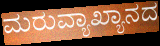
ಮರುವ್ಯಾಖ್ಯಾನದ